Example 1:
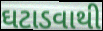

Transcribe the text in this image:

ઘટાડવાથી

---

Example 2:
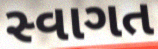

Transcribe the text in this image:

સ્વાગત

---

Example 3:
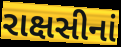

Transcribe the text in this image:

રાક્ષસીનાં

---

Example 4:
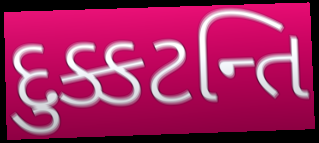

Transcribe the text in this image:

દુક્કટન્તિ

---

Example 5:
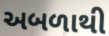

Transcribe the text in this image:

અબળાથી